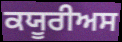
ਕਯੂਰੀਅਸ